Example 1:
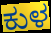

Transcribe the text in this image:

ಕುಳ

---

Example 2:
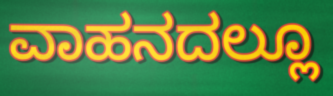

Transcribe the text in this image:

ವಾಹನದಲ್ಲೂ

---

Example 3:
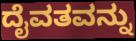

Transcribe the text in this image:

ದೈವತವನ್ನು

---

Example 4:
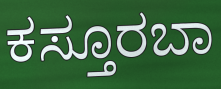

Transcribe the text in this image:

ಕಸ್ತೂರಬಾ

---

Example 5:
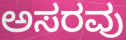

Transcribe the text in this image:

ಅಸರವು